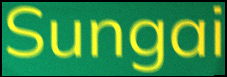
Sungai